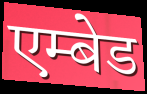
एम्बेड